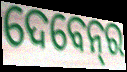
ଦେବେନ୍‌ର